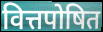
वित्तपोषित